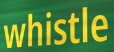
whistle